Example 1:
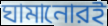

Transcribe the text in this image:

ঘামানোরই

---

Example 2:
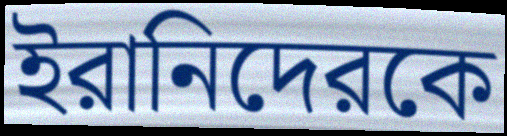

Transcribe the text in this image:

ইরানিদেরকে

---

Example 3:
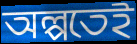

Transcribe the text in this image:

অল্পতেই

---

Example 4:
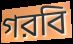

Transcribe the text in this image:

গরবি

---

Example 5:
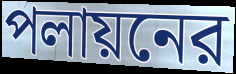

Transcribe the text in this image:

পলায়নের